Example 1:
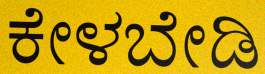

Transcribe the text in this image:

ಕೇಳಬೇಡಿ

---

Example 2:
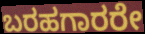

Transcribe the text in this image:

ಬರಹಗಾರರೇ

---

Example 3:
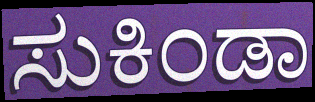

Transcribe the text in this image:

ಸುಕಿಂಡಾ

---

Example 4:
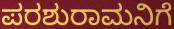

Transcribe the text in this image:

ಪರಶುರಾಮನಿಗೆ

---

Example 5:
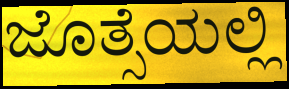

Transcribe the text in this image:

ಜೊತ್ಸೆಯಲ್ಲಿ